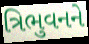
ત્રિભુવનને